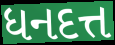
ધનદત્ત